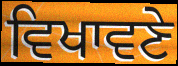
ਵਿਖਾਵਣੇ